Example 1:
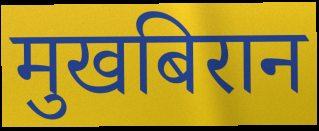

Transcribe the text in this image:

मुखबिरान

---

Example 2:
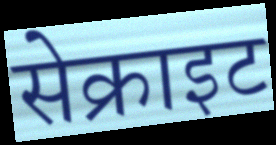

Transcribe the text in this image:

सेक्राइट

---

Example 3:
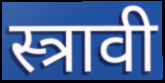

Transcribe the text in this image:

स्त्रावी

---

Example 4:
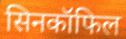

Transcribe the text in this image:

सिनकॉफिल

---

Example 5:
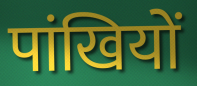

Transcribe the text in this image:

पांखियों